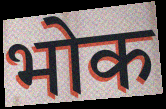
भोक